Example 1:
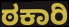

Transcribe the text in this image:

ಠಕಾರಿ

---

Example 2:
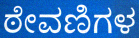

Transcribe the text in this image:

ಠೇವಣಿಗಳ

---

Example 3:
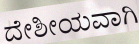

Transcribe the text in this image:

ದೇಶೀಯವಾಗಿ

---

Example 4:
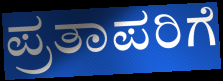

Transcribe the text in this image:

ಪ್ರತಾಪರಿಗೆ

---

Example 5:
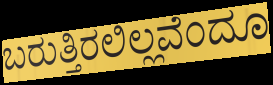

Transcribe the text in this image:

ಬರುತ್ತಿರಲಿಲ್ಲವೆಂದೂ